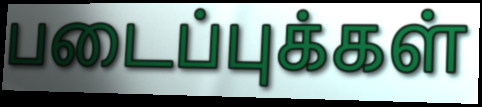
படைப்புக்கள்